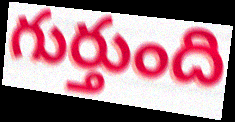
గుర్తుంది